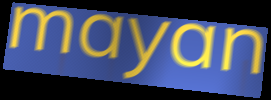
mayan